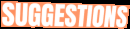
SUGGESTIONS